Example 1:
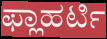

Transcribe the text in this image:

ಫ್ಲಾಹರ್ಟಿ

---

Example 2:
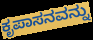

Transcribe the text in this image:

ಕೃಪಾಸನವನ್ನು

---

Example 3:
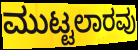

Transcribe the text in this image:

ಮುಟ್ಟಲಾರವು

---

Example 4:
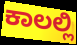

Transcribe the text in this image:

ಕಾಲಲ್ಲಿ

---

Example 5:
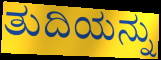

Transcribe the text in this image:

ತುದಿಯನ್ನು